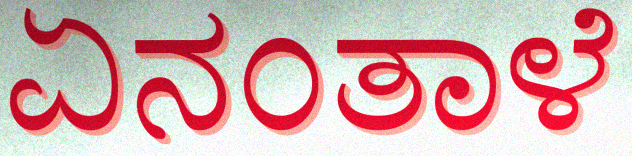
ಏನಂತಾಳೆ